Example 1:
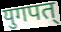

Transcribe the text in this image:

युगपत्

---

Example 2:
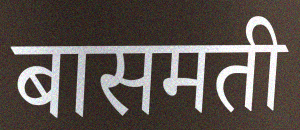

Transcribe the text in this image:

बासमती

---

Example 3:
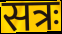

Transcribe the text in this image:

सत्रः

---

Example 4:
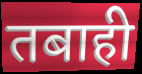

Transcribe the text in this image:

तबाही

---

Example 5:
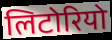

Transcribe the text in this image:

लिटोरियो